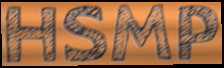
HSMP